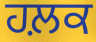
ਹਲ਼ਕ